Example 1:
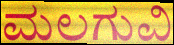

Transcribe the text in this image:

ಮಲಗುವಿ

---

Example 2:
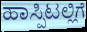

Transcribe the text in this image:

ಹಾಸ್ಪಿಟಲ್ಲಿಗೆ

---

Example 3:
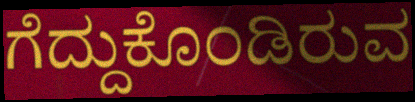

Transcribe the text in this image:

ಗೆದ್ದುಕೊಂಡಿರುವ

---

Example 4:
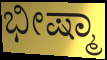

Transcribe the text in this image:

ಭೀಷ್ಮಾ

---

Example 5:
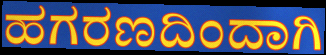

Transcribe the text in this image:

ಹಗರಣದಿಂದಾಗಿ